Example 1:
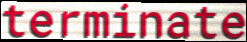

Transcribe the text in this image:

terminate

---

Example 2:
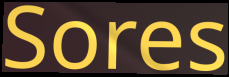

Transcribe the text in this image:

Sores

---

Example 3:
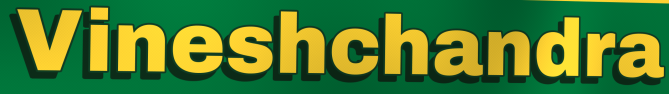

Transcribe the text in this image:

Vineshchandra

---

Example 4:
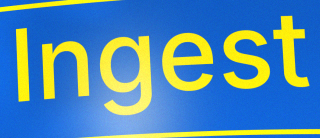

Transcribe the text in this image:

Ingest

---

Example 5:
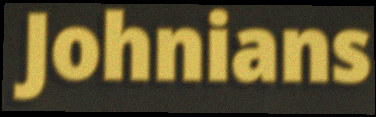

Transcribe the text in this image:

Johnians